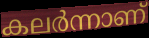
കലർന്നാണ്